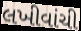
લખીવાંચી